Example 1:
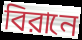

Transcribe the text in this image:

বিরানে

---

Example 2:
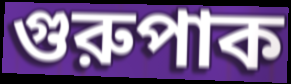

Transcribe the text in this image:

গুরুপাক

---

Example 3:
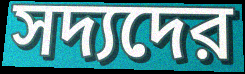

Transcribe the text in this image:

সদ্যদের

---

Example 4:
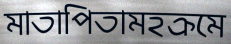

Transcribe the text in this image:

মাতাপিতামহক্রমে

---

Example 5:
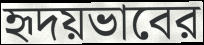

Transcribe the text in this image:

হৃদয়ভাবের